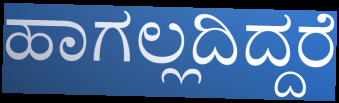
ಹಾಗಲ್ಲದಿದ್ದರೆ